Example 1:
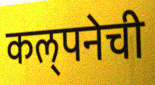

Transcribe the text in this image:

कल्पनेची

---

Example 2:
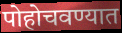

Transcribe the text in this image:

पोहोचवण्यात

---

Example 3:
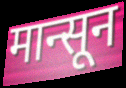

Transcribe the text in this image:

मान्सून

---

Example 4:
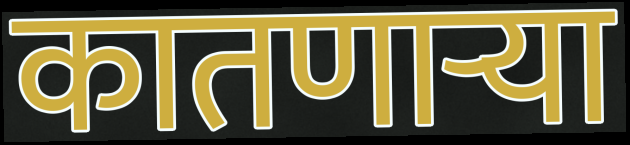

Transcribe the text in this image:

कातणाऱ्या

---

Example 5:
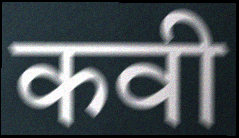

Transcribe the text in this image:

कवी